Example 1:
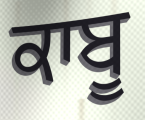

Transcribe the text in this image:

ਕਾਬੂ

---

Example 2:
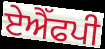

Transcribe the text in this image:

ਏਐੱਫਪੀ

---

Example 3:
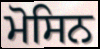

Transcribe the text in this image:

ਮੋਸਿਨ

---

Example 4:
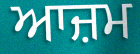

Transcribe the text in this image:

ਆਜ਼ਮ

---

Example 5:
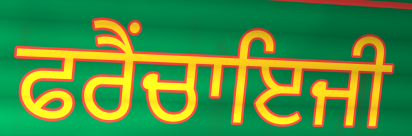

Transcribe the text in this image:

ਫਰੈਂਚਾਇਜੀ